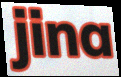
jina